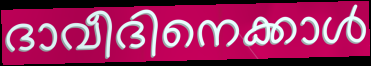
ദാവീദിനെക്കാൾ